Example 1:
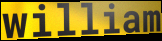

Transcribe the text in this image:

william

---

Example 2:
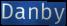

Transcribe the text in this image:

Danby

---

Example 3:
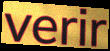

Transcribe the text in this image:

verir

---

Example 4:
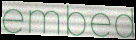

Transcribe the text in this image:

embed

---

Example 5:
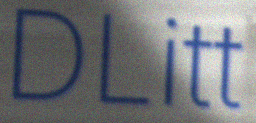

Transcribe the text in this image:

DLitt